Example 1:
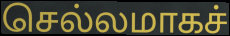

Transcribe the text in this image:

செல்லமாகச்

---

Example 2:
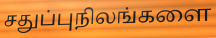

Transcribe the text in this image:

சதுப்புநிலங்களை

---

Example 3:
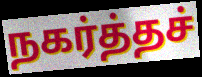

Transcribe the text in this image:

நகர்த்தச்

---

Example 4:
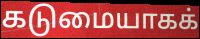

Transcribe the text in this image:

கடுமையாகக்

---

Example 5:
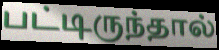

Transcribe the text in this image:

பட்டிருந்தால்